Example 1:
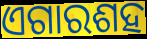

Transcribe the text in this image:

ଏଗାରଶହ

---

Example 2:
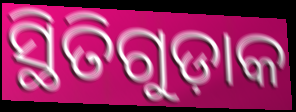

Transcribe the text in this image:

ସ୍ଥିତିଗୁଡ଼ାକ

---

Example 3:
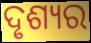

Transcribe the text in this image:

ଦୃଶ୍ୟର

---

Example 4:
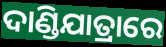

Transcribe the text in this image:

ଦାଣ୍ଡିଯାତ୍ରାରେ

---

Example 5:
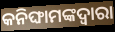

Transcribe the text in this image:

କନିଙ୍ଘାମଙ୍କଦ୍ଵାରା